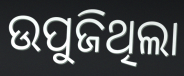
ଉପୁଜିଥିଲା